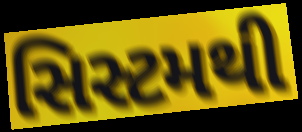
સિસ્ટમથી